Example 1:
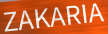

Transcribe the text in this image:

ZAKARIA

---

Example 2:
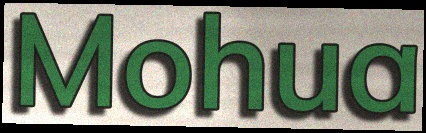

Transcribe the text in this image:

Mohua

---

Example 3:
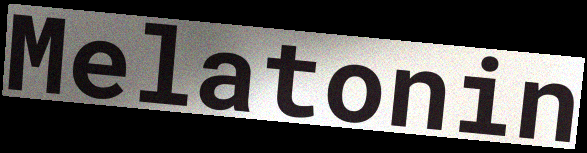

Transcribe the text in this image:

Melatonin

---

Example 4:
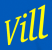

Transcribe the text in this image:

Vill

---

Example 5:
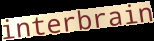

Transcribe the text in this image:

interbrain